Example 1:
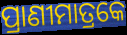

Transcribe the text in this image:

ପ୍ରାଣୀମାତ୍ରକେ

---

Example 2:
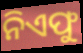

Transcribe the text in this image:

ନିଏଫୁ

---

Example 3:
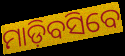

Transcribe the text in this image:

ମାଡ଼ିବସିବେ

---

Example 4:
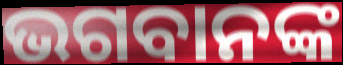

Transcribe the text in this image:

ଭଗବାନଙ୍କ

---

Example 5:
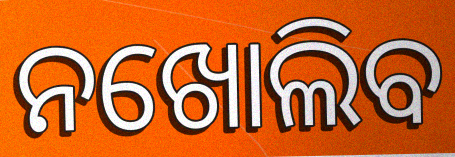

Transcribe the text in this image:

ନଖୋଲିବ